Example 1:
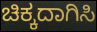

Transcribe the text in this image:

ಚಿಕ್ಕದಾಗಿಸಿ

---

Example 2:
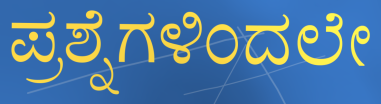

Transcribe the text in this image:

ಪ್ರಶ್ನೆಗಳಿಂದಲೇ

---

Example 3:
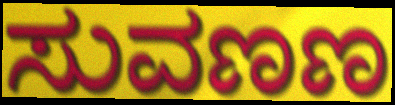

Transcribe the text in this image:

ಸುವಣಣ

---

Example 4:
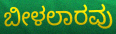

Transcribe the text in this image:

ಬೀಳಲಾರವು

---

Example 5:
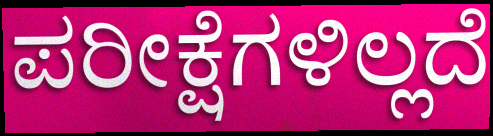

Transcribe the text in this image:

ಪರೀಕ್ಷೆಗಳಿಲ್ಲದೆ